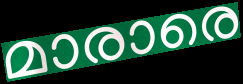
മാരാരെ